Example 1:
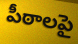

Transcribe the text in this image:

పీఠాలపై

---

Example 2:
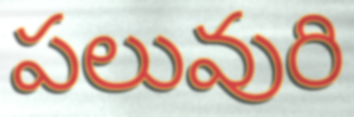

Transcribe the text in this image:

పలువురి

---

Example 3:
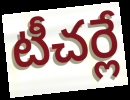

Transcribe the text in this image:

టీచర్లే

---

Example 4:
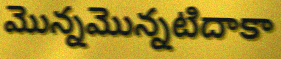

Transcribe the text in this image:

మొన్నమొన్నటిదాకా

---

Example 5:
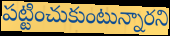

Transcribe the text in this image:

పట్టించుకుంటున్నారని